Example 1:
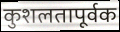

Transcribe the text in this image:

कुशलतापूर्वक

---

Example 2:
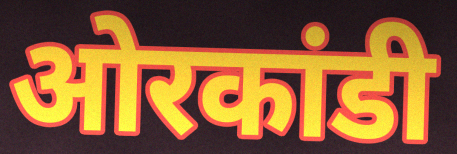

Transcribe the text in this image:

ओरकांडी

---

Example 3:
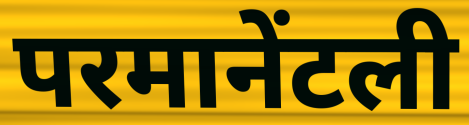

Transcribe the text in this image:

परमानेंटली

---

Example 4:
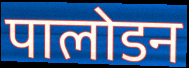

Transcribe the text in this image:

पालोडन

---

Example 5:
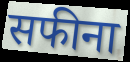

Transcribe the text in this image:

सफीना